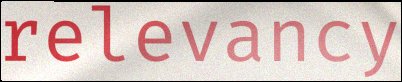
relevancy